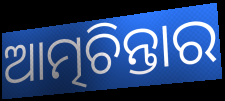
ଆତ୍ମଚିନ୍ତାର